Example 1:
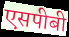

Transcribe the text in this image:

एसपीबी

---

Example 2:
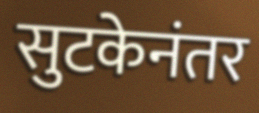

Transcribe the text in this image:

सुटकेनंतर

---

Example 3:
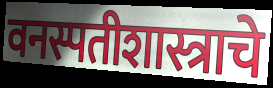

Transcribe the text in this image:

वनस्पतीशास्त्राचे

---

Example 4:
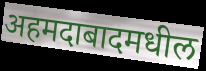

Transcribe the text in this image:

अहमदाबादमधील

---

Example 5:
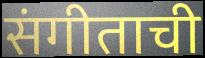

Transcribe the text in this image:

संगीताची